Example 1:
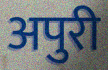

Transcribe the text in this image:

अपुरी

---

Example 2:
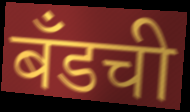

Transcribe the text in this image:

बँडची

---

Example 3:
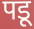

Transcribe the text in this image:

पडू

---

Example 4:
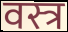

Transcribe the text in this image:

वस्त्र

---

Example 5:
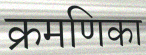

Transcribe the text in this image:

क्रमणिका